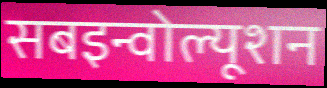
सबइन्वोल्यूशन